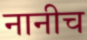
नानीच